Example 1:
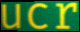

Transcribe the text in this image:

ucr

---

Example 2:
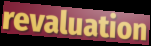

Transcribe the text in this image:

revaluation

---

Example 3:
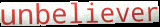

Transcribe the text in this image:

unbeliever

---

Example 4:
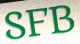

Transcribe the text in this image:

SFB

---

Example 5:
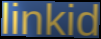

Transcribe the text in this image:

linkid